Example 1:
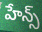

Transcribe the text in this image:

హేన్స్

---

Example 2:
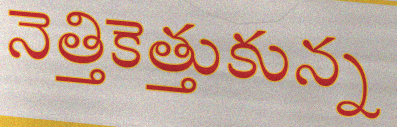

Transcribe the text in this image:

నెత్తికెత్తుకున్న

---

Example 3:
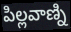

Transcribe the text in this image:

పిల్లవాణ్ని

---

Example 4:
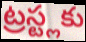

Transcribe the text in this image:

ట్రస్ట్లకు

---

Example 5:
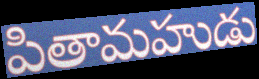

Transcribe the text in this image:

పితామహుడు